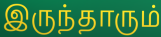
இருந்தாரும்